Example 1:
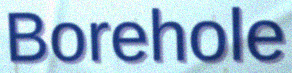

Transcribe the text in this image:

Borehole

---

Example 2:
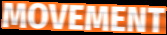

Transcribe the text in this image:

MOVEMENT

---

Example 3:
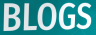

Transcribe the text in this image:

BLOGS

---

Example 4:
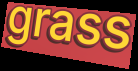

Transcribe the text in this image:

grass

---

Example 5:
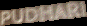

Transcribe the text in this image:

PUDHARI